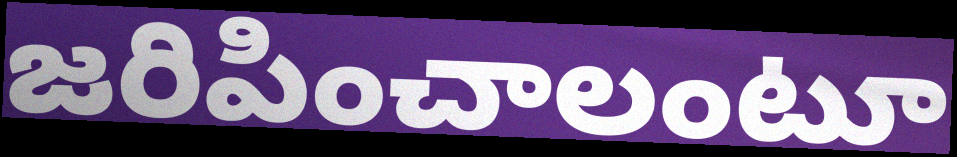
జరిపించాలంటూ